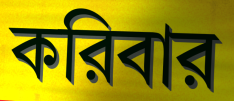
করিবার